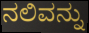
ನಲಿವನ್ನು